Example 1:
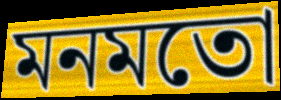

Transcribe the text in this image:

মনমতো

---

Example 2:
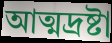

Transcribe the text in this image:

আত্মদ্রষ্টা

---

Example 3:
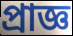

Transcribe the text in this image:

প্রাজ্ঞ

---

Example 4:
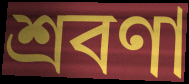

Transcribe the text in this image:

শ্রবণা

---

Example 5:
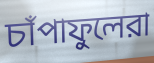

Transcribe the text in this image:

চাঁপাফুলেরা